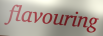
flavouring